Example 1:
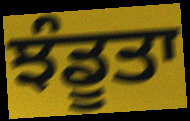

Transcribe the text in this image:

ਝੰਡੂਤਾ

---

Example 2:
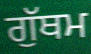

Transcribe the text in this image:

ਗੁੱਥਮ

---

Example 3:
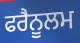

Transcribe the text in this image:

ਫਰੈਨੂਲਮ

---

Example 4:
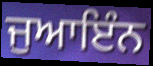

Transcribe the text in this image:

ਜੁਆਇੰਨ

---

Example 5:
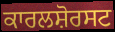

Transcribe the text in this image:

ਕਾਰਲਸ਼ੋਰਸਟ